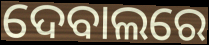
ଦେବାଲରେ